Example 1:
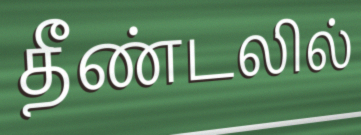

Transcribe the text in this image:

தீண்டலில்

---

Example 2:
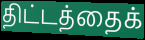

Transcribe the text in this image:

திட்டத்தைக்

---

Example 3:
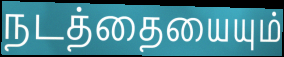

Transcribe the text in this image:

நடத்தையையும்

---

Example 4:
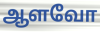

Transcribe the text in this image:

ஆளவோ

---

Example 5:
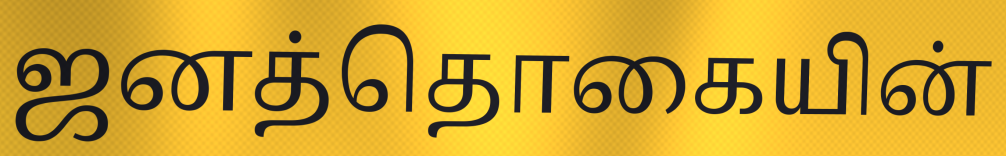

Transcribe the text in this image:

ஜனத்தொகையின்